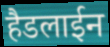
हैडलाईन